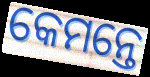
କେମନ୍ତେ